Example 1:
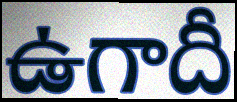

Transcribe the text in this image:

ఉగాదీ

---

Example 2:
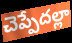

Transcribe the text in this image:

చెప్పేదల్లా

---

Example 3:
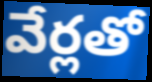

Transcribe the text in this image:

వేర్లతో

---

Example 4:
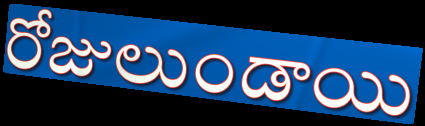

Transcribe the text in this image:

రోజులుండాయి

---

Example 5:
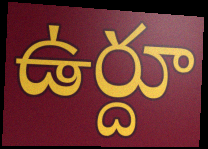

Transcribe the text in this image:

ఉర్దూ